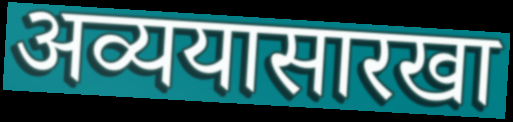
अव्ययासारखा